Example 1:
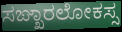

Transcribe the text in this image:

ಸಙ್ಖಾರಲೋಕಸ್ಸ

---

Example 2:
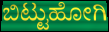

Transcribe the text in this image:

ಬಿಟ್ಟುಹೋಗಿ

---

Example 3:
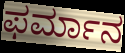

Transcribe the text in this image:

ಫರ್ಮಾನ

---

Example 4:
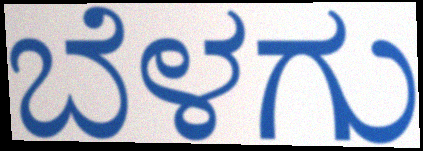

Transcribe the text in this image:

ಬೆಳಗು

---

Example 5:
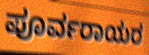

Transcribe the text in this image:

ಪೂರ್ವರಾಯರ